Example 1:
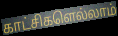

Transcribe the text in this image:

காட்சிகளெல்லாம்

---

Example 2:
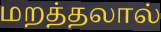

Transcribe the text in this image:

மறத்தலால்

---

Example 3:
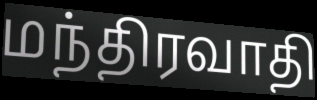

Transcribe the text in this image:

மந்திரவாதி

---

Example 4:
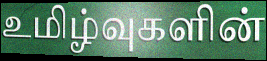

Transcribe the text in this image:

உமிழ்வுகளின்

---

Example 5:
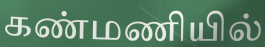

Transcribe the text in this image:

கண்மணியில்